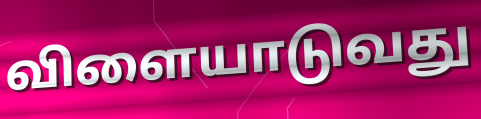
விளையாடுவது